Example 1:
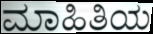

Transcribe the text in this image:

ಮಾಹಿತಿಯ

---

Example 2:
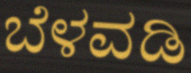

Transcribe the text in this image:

ಬೆಳವಡಿ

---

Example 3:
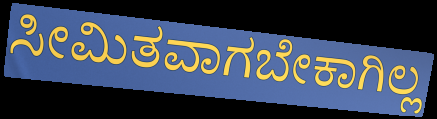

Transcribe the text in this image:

ಸೀಮಿತವಾಗಬೇಕಾಗಿಲ್ಲ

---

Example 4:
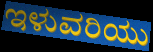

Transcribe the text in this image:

ಇಳುವರಿಯು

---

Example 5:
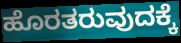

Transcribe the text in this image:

ಹೊರತರುವುದಕ್ಕೆ